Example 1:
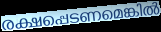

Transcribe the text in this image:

രക്ഷപ്പെടണമെങ്കിൽ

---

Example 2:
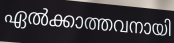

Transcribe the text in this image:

ഏൽക്കാത്തവനായി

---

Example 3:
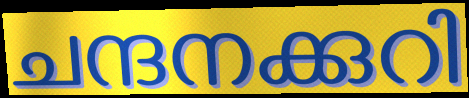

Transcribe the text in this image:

ചന്ദനക്കുറി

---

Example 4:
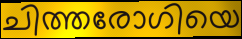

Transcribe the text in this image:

ചിത്തരോഗിയെ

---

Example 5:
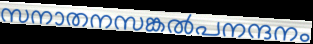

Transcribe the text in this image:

സനാതനസങ്കൽപനന്ദനം